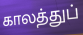
காலத்துப்